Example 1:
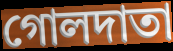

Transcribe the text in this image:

গোলদাতা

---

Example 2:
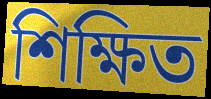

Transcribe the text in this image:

শিক্ষিত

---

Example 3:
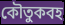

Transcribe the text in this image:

কৌতুকবহ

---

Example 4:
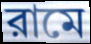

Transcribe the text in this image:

রামে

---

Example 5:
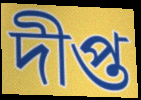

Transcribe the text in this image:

দীপ্ত